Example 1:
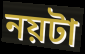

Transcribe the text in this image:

নয়টা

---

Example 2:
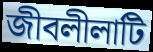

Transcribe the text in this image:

জীবলীলাটি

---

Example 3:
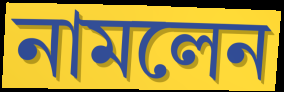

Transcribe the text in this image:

নামলেন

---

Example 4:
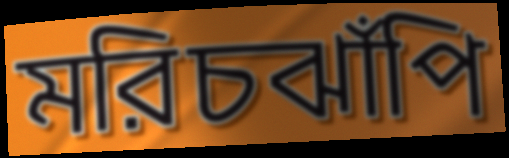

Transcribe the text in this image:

মরিচঝাঁপি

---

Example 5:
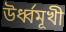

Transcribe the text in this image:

উর্ধ্বমূখী